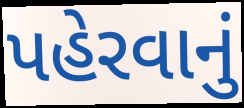
પહેરવાનું